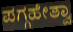
ಪಗ್ಗಹೇತ್ವಾ